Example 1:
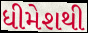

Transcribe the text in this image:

ધીમેશથી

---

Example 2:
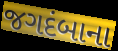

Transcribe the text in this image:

જગદંબાના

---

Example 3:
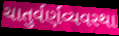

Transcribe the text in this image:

ચાતુર્વર્ણવ્યવસ્થા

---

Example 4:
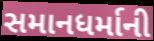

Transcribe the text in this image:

સમાનધર્માની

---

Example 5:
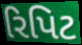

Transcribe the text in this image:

રિપિટ